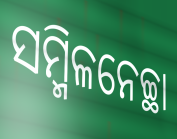
ସମ୍ମିଳନେଚ୍ଛା